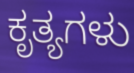
ಕೃತ್ಯಗಳು